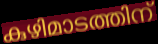
കുഴിമാടത്തിന്